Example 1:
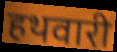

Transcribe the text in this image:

हथवारी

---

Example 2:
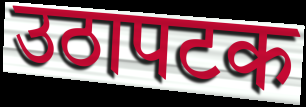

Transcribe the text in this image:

उठापटक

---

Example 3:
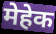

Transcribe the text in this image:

मेहेक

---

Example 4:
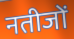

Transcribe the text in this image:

नतीजों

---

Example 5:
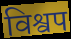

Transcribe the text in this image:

विश्वप